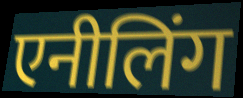
एनीलिंग